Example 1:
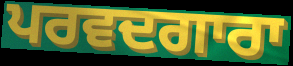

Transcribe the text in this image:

ਪਰਵਦਗਾਰਾ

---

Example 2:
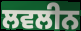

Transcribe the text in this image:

ਲਵਲੀਨ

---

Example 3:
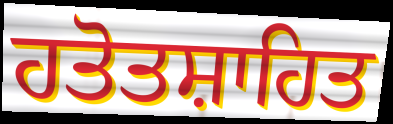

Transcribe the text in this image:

ਹਤੋਤਸ਼ਾਹਿਤ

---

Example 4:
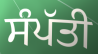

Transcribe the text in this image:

ਸੰਪੱਤੀ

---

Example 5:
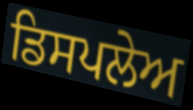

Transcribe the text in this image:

ਡਿਸਪਲੇਅ